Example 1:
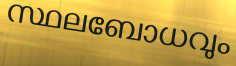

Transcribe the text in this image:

സ്ഥലബോധവും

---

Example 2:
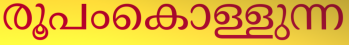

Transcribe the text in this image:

രൂപംകൊള്ളുന്ന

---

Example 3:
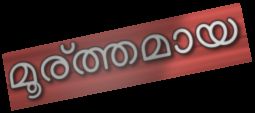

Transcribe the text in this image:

മൂര്ത്തമായ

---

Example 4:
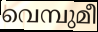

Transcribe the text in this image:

വെമ്പുമീ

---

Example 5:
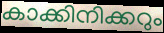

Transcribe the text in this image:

കാക്കിനിക്കറും